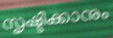
സൃഷ്ടിക്കാനും